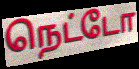
நெட்டோ